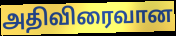
அதிவிரைவான